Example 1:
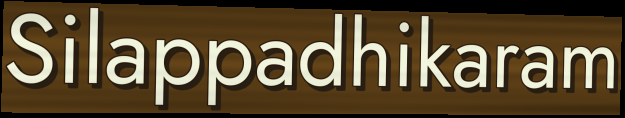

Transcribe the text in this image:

Silappadhikaram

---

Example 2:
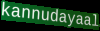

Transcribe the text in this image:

kannudayaal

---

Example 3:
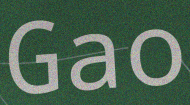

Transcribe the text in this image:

Gao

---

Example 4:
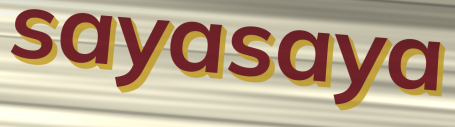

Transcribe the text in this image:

sayasaya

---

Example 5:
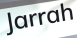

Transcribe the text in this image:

Jarrah